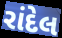
રાંદેલ